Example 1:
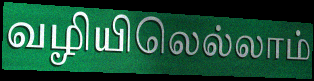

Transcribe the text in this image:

வழியிலெல்லாம்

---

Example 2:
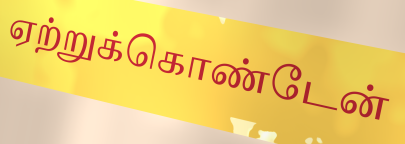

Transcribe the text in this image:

ஏற்றுக்கொண்டேன்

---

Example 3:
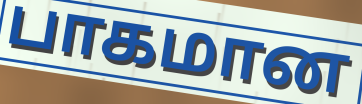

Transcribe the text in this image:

பாகமான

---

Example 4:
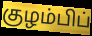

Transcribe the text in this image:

குழம்பிப்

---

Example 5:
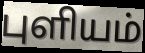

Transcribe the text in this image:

புளியம்